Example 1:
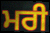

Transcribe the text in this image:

ਮਰੀ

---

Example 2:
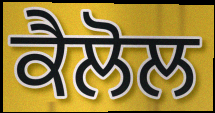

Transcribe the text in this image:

ਕੈਲੋਲ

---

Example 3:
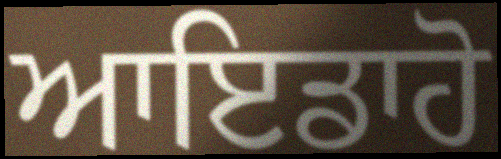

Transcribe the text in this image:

ਆਇਡਾਹੋ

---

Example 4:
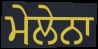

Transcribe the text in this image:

ਮੇਲੇਨਾ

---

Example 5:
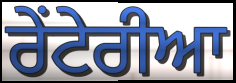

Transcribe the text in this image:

ਰੇਂਟੇਰੀਆ